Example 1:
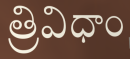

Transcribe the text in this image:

త్రివిధాం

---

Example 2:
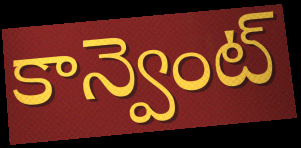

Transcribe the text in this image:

కాన్వెంట్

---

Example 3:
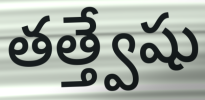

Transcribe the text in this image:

తత్త్వేషు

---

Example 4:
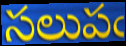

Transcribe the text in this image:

సలుపఁ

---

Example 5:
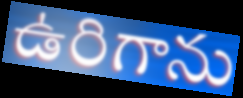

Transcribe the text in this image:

ఉరిగాను